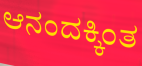
ಆನಂದಕ್ಕಿಂತ